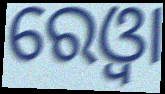
ରେଓ୍ବା